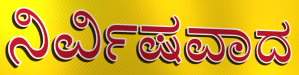
ನಿರ್ವಿಷವಾದ